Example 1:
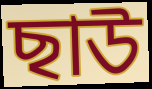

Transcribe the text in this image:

ছাউ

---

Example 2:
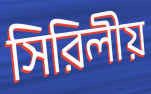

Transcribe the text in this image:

সিরিলীয়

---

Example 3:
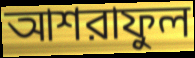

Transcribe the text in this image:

আশরাফুল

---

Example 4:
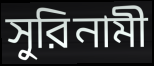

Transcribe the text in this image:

সুরিনামী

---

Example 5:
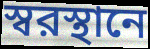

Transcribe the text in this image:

স্বরস্থানে